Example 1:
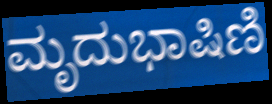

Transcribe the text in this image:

ಮೃದುಭಾಷಿಣಿ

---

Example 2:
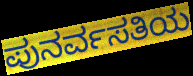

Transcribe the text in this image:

ಪುನರ್ವಸತಿಯ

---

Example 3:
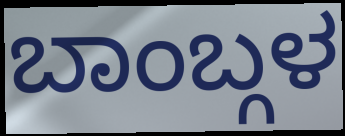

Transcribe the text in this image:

ಬಾಂಬ್ಗಳ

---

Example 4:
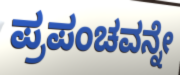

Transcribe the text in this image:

ಪ್ರಪಂಚವನ್ನೇ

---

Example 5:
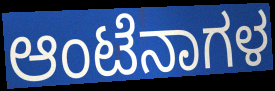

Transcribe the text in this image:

ಆಂಟೆನಾಗಳ